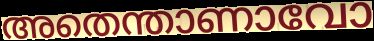
അതെന്താണാവോ